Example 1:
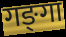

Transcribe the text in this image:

गङ्‍गा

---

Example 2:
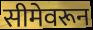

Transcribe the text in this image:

सीमेवरून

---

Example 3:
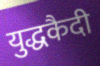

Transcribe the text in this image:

युद्धकैदी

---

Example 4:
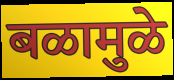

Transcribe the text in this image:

बळामुळे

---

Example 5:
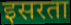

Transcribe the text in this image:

इसरता